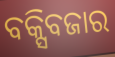
ବକ୍ସିବଜାର